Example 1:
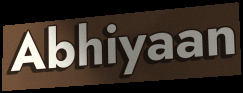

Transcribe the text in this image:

Abhiyaan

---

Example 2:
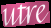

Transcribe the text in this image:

utre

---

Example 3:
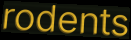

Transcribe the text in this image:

rodents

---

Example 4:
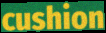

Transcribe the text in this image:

cushion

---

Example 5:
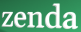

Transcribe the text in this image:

zenda